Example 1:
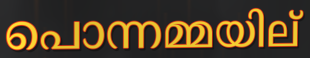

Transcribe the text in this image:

പൊന്നമ്മയില്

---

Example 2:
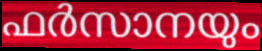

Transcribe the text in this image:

ഫർസാനയും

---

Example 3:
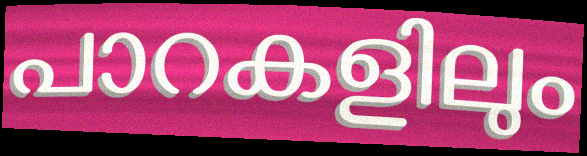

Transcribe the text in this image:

പാറകളിലും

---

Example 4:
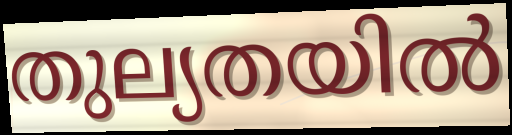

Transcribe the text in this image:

തുല്യതയിൽ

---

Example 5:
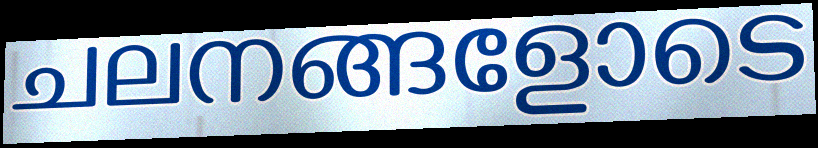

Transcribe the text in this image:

ചലനങ്ങളോടെ